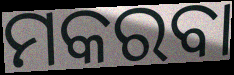
ମକରବା